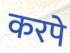
करपे